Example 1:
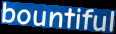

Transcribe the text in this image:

bountiful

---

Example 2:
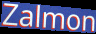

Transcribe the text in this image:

Zalmon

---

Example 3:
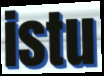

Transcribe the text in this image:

istu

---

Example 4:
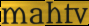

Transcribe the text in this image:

mahtv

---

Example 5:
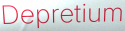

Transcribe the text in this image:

Depretium